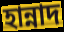
হান্নাদ